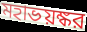
মহাভয়ঙ্কর